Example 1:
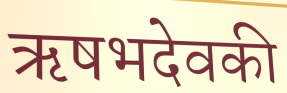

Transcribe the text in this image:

ऋषभदेवकी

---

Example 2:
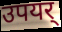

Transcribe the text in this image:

उपयर्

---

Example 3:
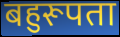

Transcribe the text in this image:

बहुरूपता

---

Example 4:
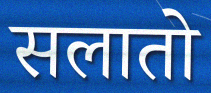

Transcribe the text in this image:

सलातो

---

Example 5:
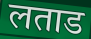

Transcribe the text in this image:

लताड